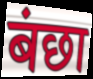
बंछा